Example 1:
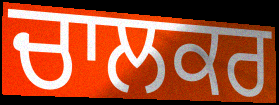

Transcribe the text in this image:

ਚਾਲਕਰ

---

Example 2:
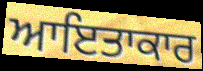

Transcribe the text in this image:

ਆਇਤਾਕਾਰ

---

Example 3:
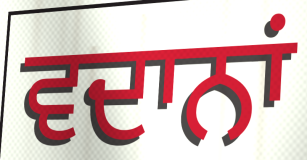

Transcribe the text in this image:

ਵਦਾਨਾਂ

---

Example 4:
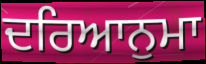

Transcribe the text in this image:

ਦਰਿਆਨੁਮਾ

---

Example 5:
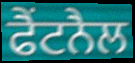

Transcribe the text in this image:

ਫੈਂਟਨੈਲ